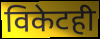
विकेटही